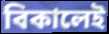
বিকালেই